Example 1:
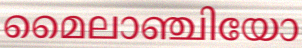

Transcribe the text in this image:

മൈലാഞ്ചിയോ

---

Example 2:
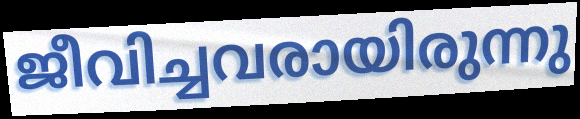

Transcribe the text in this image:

ജീവിച്ചവരായിരുന്നു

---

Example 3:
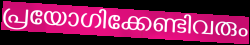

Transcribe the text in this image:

പ്രയോഗിക്കേണ്ടിവരും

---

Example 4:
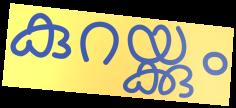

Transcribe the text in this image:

കുറയ്ക്കും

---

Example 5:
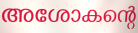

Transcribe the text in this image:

അശോകന്റെ